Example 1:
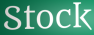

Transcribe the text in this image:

Stock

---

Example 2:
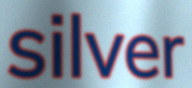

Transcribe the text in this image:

silver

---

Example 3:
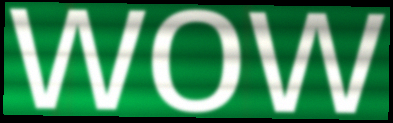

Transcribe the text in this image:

wow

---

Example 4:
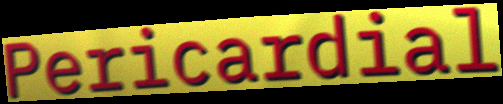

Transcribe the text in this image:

Pericardial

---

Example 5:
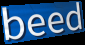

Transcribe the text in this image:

beed